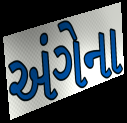
અંગેના